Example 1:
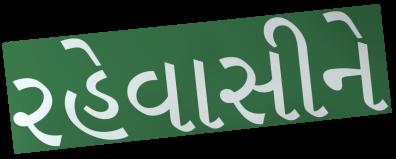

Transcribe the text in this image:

રહેવાસીને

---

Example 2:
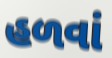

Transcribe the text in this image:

હળવાં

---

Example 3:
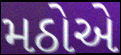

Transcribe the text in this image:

મઠોએ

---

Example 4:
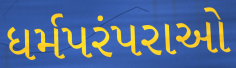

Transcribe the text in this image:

ધર્મપરંપરાઓ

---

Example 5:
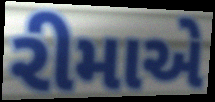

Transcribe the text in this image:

રીમાએ